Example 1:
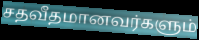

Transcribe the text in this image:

சதவீதமானவர்களும்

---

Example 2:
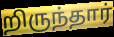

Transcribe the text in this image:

றிருந்தார்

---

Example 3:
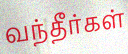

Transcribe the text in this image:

வந்தீர்கள்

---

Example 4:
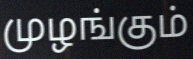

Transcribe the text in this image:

முழங்கும்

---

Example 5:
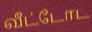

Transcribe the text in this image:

வீட்டோட